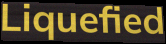
Liquefied